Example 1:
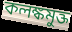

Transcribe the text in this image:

কলঙ্কমুক্ত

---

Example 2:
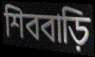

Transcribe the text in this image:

শিববাড়ি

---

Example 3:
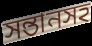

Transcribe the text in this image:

সন্তানসহ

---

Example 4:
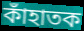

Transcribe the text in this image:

কাঁহাতক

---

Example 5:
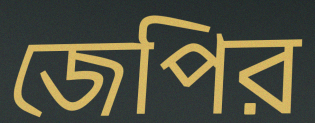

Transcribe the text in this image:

জেপির